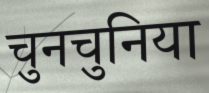
चुनचुनिया